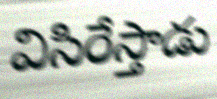
విసిరేస్తాడు